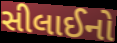
સીલાઈનો